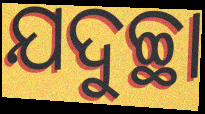
ଯଦୁଚ୍ଛା